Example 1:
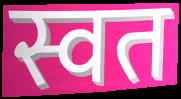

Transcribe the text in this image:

स्वत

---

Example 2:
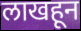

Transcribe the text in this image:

लाखहून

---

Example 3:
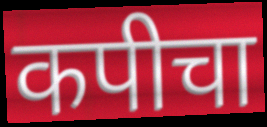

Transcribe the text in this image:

कपीचा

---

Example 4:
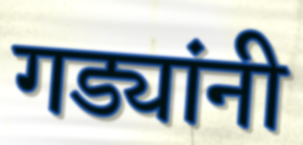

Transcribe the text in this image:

गड्यांनी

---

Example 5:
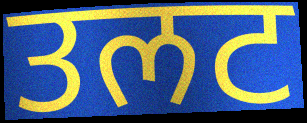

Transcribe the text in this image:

उलट